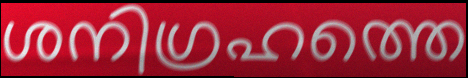
ശനിഗ്രഹത്തെ